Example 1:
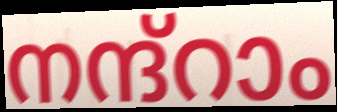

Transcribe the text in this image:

നന്ദ്റാം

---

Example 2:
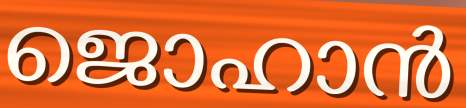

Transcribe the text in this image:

ജൊഹാൻ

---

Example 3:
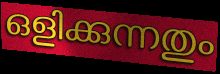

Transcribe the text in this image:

ഒളിക്കുന്നതും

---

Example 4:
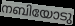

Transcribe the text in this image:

നബിയോടു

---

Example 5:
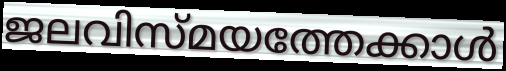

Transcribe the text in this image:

ജലവിസ്മയത്തേക്കാൾ